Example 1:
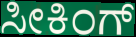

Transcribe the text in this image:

ಸೀಕಿಂಗ್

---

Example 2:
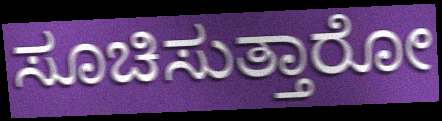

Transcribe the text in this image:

ಸೂಚಿಸುತ್ತಾರೋ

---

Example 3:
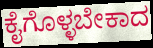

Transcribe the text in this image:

ಕೈಗೊಳ್ಳಬೇಕಾದ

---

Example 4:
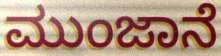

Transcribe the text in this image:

ಮುಂಜಾನೆ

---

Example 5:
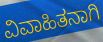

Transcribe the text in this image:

ವಿವಾಹಿತನಾಗಿ